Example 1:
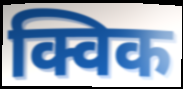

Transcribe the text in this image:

क्विक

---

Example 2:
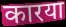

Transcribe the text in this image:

कारया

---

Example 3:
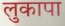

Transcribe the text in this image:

लुकापा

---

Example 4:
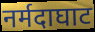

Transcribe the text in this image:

नर्मदाघाट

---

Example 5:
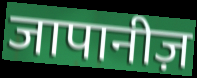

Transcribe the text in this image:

जापानीज़